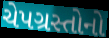
ચેપગ્રસ્તોનો